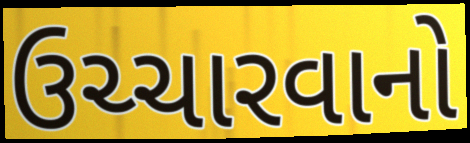
ઉચ્ચારવાનો